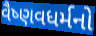
વૈષ્ણવધર્મનો